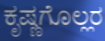
ಕೃಷ್ಣಗೊಲ್ಲರ